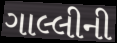
ગાલ્લીની